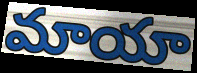
మాయా